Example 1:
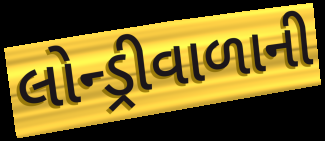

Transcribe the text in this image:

લોન્ડ્રીવાળાની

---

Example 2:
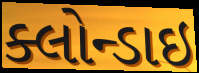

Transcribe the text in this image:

ક્લોન્ડાઇ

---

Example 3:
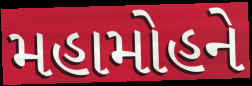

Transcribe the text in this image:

મહામોહને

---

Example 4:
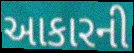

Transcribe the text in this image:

આકારની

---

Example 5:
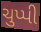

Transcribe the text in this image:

ચુપ્પી